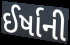
ઈર્ષાની